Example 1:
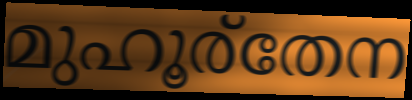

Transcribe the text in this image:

മുഹൂര്തേന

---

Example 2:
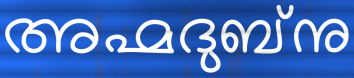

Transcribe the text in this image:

അഹ്മദുബ്നു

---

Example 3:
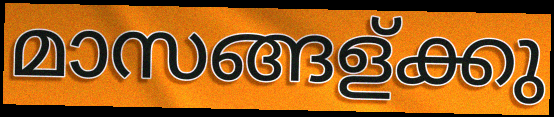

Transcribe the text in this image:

മാസങ്ങള്ക്കു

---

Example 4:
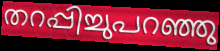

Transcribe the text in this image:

തറപ്പിച്ചുപറഞ്ഞു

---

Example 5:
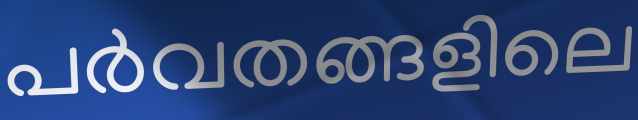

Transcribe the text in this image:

പർവതങ്ങളിലെ